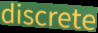
discrete